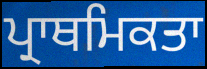
ਪ੍ਰਾਥਮਿਕਤਾ